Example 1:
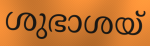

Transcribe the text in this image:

ശുഭാശയ്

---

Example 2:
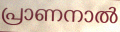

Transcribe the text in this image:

പ്രാണനാൽ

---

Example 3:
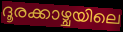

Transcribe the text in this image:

ദൂരക്കാഴ്ചയിലെ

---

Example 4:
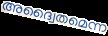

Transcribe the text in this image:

അദ്വൈതമെന്ന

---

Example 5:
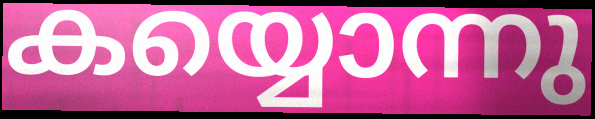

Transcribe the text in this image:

കയ്യൊന്നു